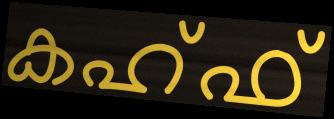
കഹ്ഫ്